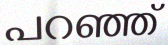
പറഞ്ഞ്